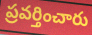
ప్రవర్తించారు